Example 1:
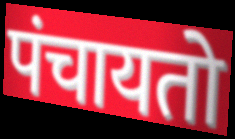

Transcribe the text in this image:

पंचायतो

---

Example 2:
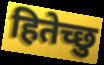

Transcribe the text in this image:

हितेच्छु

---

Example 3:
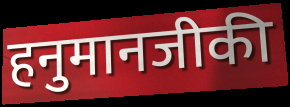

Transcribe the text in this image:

हनुमानजीकी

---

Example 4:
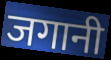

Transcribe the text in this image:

जगानी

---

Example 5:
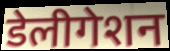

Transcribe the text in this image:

डेलीगेशन